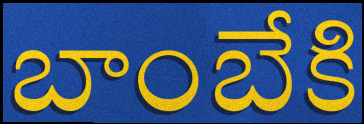
బాంబేకి